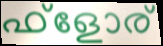
ഫ്ളോര്